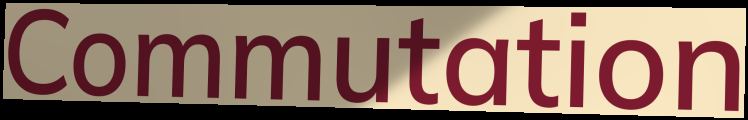
Commutation